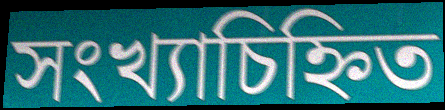
সংখ্যাচিহ্নিত